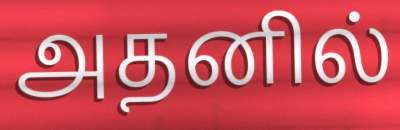
அதனில்